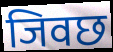
जिवछ